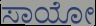
ಸಾಯೋ